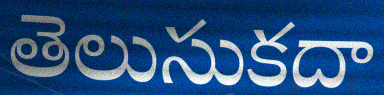
తెలుసుకదా